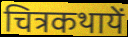
चित्रकथायें